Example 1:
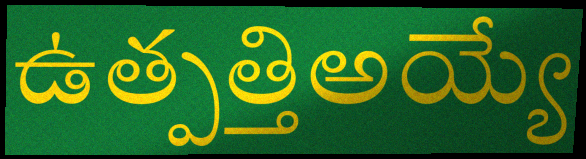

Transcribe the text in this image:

ఉత్పత్తిఅయ్యే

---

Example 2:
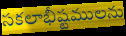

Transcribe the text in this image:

సకలాభీష్టములను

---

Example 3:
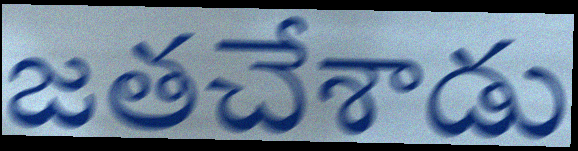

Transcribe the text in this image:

జతచేశాడు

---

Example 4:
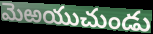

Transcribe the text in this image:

మెఱయుచుండు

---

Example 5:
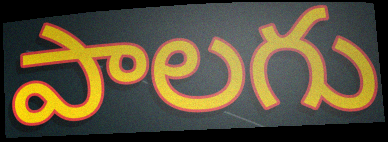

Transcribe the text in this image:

పాలగు